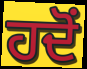
ਹਦੋਂ